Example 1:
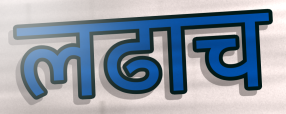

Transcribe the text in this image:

लढाच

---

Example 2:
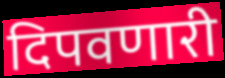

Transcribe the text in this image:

दिपवणारी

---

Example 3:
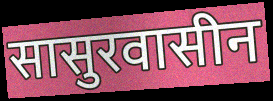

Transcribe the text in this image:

सासुरवासीन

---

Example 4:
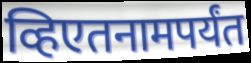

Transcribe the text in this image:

व्हिएतनामपर्यंत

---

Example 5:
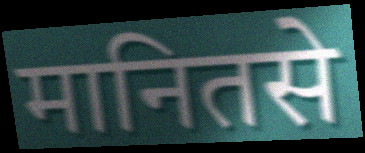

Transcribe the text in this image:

मानितसे